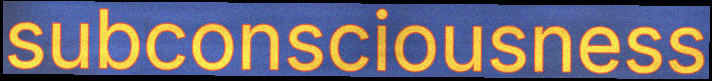
subconsciousness